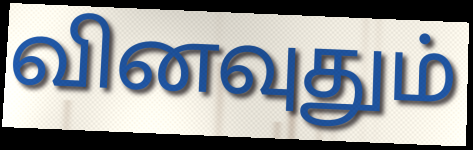
வினவுதும்